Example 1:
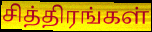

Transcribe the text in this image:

சித்திரங்கள்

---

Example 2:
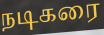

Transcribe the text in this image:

நடிகரை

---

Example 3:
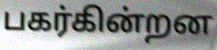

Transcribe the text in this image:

பகர்கின்றன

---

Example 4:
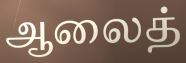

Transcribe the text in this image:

ஆலைத்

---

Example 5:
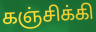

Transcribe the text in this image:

கஞ்சிக்கி